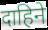
दाहिने